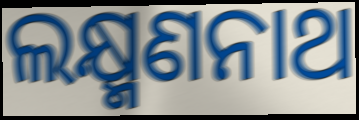
ଲକ୍ଷ୍ମଣନାଥ